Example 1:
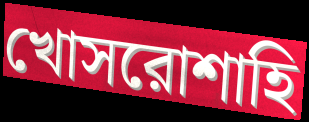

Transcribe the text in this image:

খোসরোশাহি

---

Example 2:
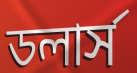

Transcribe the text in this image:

ডলার্স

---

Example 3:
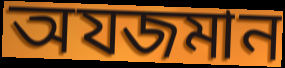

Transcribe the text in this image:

অযজমান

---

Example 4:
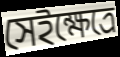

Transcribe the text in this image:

সেইক্ষেত্রে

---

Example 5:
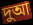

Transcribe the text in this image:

দুআ